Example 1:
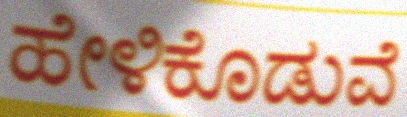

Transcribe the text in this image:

ಹೇಳಿಕೊಡುವೆ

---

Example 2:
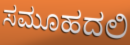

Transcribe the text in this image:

ಸಮೂಹದಲಿ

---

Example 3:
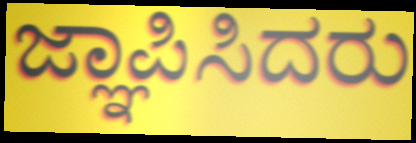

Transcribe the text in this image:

ಜ್ಞಾಪಿಸಿದರು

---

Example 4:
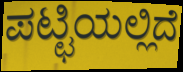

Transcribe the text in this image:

ಪಟ್ಟಿಯಲ್ಲಿದೆ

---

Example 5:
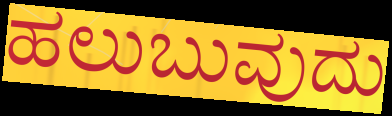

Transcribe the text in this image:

ಹಲುಬುವುದು